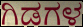
ಗಿಡಗಳ